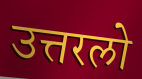
उत्तरलो